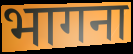
भागना